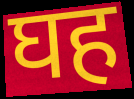
घह